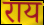
राय